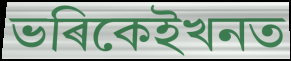
ভৰিকেইখনত